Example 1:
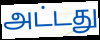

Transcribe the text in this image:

அட்டது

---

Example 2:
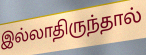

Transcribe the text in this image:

இல்லாதிருந்தால்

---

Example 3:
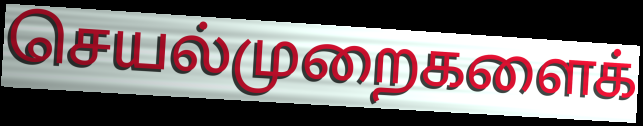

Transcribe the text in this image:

செயல்முறைகளைக்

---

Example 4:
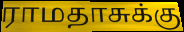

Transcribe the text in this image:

ராமதாசுக்கு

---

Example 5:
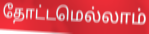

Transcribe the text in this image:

தோட்டமெல்லாம்